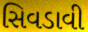
સિવડાવી